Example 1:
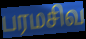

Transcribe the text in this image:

பரமசிவ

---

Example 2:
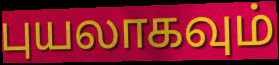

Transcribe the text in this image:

புயலாகவும்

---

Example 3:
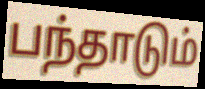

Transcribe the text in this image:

பந்தாடும்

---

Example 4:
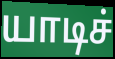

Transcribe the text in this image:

யாடிச்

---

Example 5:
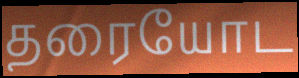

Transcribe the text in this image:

தரையோட